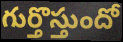
గుర్తొస్తుందో